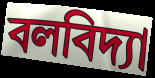
বলবিদ্যা